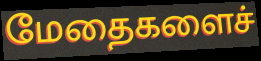
மேதைகளைச்